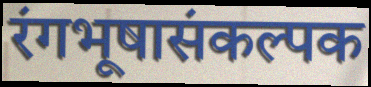
रंगभूषासंकल्पक